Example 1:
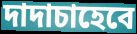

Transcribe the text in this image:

দাদাচাহেবে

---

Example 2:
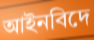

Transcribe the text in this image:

আইনবিদে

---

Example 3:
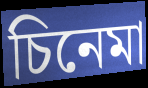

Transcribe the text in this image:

চিনেমা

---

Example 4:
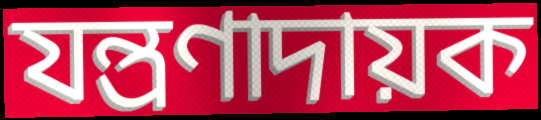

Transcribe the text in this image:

যন্ত্ৰণাদায়ক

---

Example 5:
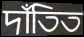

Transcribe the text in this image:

দাঁতিত